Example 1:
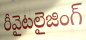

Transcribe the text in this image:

రీవైటలైజింగ్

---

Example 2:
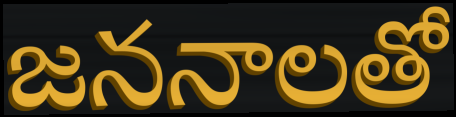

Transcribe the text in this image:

జననాలతో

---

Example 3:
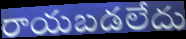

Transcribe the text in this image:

రాయబడలేదు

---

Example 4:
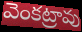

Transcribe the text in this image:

వెంకట్రావు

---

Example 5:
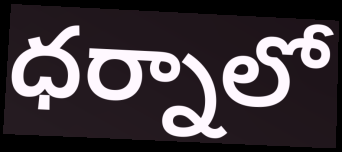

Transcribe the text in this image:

ధర్నాలో